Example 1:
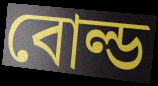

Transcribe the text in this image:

বোল্ড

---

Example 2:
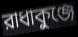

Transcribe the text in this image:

রাধাকুঞ্জে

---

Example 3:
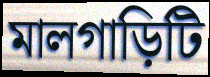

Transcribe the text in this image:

মালগাড়িটি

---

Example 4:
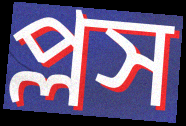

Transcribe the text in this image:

প্লস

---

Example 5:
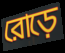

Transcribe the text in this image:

রোড়ে